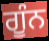
ਗੂੰਨ